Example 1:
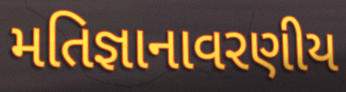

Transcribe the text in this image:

મતિજ્ઞાનાવરણીય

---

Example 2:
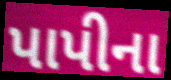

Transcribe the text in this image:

પાપીના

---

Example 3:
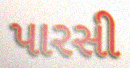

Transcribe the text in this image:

પારસી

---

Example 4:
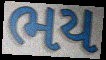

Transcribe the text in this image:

ભય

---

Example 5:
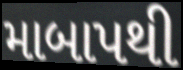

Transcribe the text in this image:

માબાપથી